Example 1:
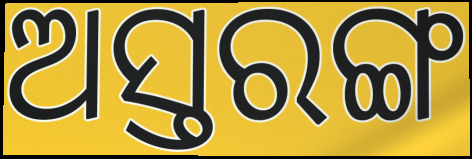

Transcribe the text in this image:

ଅସ୍ତରଙ୍ଗ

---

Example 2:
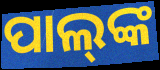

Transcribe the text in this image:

ପାଲ୍‌ଙ୍କ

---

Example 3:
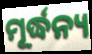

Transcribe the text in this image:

ମୂର୍ଦ୍ଧନ୍ୟ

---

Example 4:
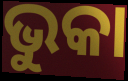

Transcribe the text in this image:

ଭୁକା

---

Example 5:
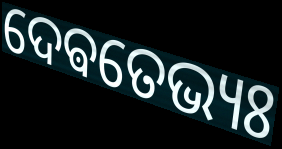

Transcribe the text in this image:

ଦେଵତେଭ୍ୟଃ